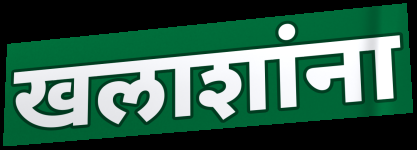
खलाशांना